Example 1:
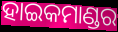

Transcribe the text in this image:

ହାଇକମାଣ୍ଡର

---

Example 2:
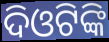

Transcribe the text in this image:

ଦିଓଟିଙ୍କି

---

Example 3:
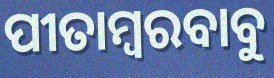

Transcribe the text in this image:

ପୀତାମ୍ବରବାବୁ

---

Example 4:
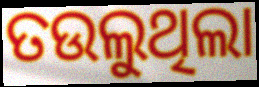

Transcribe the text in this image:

ତଉଲୁଥିଲା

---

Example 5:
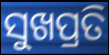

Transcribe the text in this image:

ସୁଖପ୍ରତି